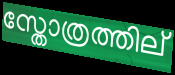
സ്തോത്രത്തില്